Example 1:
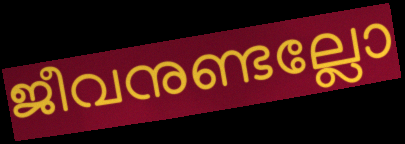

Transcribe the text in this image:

ജീവനുണ്ടല്ലോ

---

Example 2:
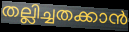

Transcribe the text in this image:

തല്ലിച്ചതക്കാൻ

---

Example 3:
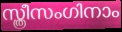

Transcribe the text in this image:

സ്ത്രീസംഗിനാം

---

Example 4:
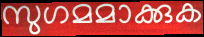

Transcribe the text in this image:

സുഗമമാക്കുക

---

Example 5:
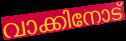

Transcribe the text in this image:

വാക്കിനോട്